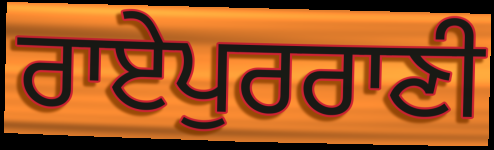
ਰਾਏਪੁਰਰਾਣੀ